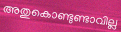
അതുകൊണ്ടുണ്ടാവില്ല